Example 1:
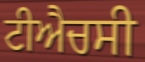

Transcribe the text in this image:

ਟੀਐਚਸੀ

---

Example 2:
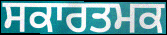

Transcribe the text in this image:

ਸਕਾਰਤਮਕ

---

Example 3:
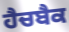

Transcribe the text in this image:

ਹੈਚਬੈਕ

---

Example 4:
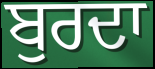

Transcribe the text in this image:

ਬੁਰਦਾ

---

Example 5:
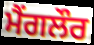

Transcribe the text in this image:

ਮੈਂਗਲੌਰ